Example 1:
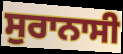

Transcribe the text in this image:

ਸੁਰਾਨਾਸੀ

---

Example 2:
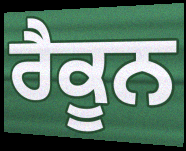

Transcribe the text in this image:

ਰੈਕੂਨ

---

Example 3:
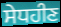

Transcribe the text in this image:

ਸੇਧਹੀਣ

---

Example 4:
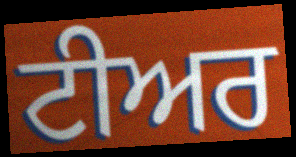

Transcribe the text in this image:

ਟੀਅਰ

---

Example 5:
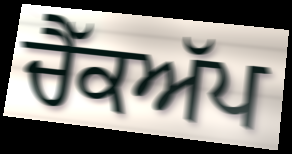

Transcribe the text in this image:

ਚੈੱਕਅੱਪ